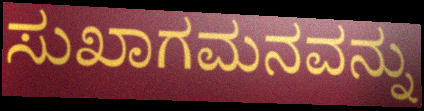
ಸುಖಾಗಮನವನ್ನು